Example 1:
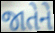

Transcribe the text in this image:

જાતેને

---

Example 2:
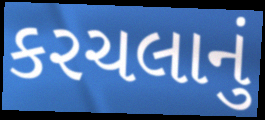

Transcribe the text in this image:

કરચલાનું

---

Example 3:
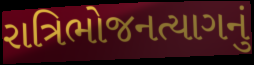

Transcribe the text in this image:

રાત્રિભોજનત્યાગનું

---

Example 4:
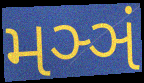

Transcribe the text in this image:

મઞ્ઞં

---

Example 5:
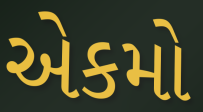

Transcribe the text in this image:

એકમો